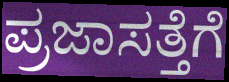
ಪ್ರಜಾಸತ್ತೆಗೆ